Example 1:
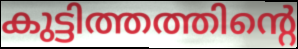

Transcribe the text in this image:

കുട്ടിത്തത്തിന്റെ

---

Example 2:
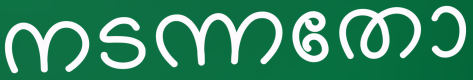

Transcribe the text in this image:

നടന്നതോ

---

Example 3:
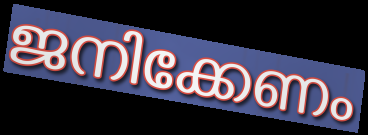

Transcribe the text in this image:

ജനിക്കേണം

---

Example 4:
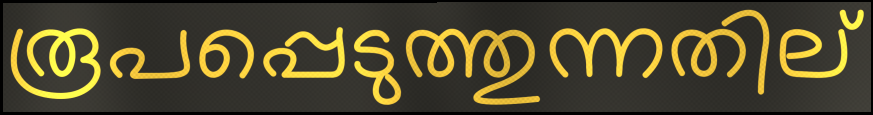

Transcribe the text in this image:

രൂപപ്പെടുത്തുന്നതില്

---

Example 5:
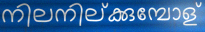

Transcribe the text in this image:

നിലനില്ക്കുമ്പോള്